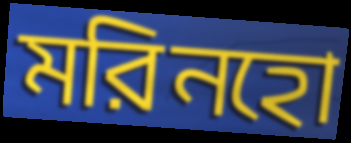
মরিনহো